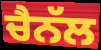
ਚੈਨੱਲ